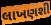
લાખણશી